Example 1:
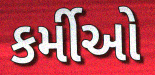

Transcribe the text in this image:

કર્મીઓ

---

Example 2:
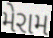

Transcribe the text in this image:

મેરામ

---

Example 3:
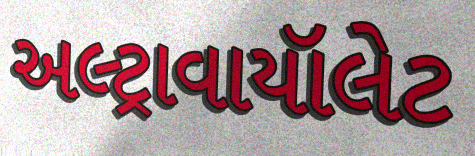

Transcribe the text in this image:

અલ્ટ્રાવાયૉલેટ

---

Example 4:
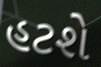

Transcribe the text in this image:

હટશે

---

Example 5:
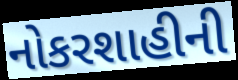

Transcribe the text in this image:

નોકરશાહીની